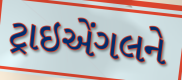
ટ્રાઇએંગલને